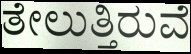
ತೇಲುತ್ತಿರುವೆ